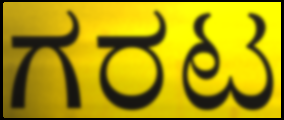
ಗರಟ